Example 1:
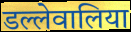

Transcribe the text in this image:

डल्लेवालिया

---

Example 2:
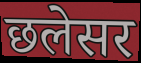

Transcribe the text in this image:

छलेसर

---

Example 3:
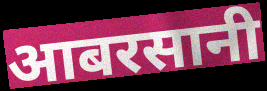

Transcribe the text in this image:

आबरसानी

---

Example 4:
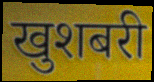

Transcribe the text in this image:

खुशबरी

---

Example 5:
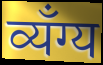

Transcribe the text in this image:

व्यँग्य